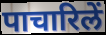
पाचारिलें